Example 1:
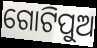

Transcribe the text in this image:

ଗୋଟିପୁଅ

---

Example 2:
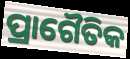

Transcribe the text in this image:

ପ୍ରାଗୈତିକ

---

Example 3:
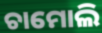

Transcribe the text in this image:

ଚାମୋଲି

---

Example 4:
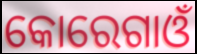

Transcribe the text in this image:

କୋରେଗାଓଁ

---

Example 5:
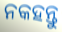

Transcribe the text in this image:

ନକହନ୍ତୁ